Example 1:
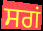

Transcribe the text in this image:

ਸਗਂ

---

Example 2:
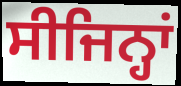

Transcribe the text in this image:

ਸੀਜਿਨ੍ਹਾਂ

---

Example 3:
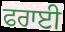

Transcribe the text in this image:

ਫਰਾਈ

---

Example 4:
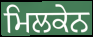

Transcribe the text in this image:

ਮਿਲਕੇਨ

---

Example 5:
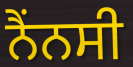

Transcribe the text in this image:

ਨੈਂਨਸੀ